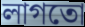
লাগতো